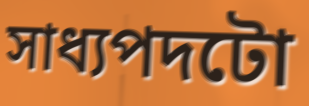
সাধ্যপদটো